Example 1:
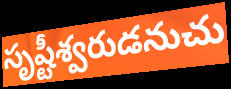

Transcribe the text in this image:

సృష్టీశ్వరుడనుచు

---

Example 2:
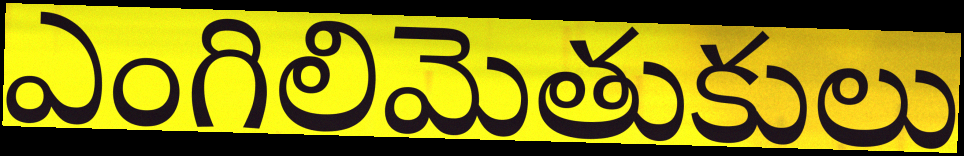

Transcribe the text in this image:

ఎంగిలిమెతుకులు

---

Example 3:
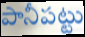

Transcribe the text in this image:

పానీపట్టు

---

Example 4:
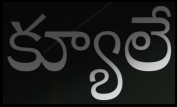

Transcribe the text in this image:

క్యూలే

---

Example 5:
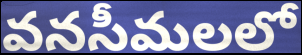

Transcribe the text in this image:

వనసీమలలో